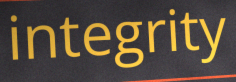
integrity